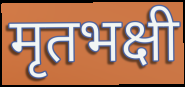
मृतभक्षी